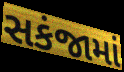
સકંજામાં